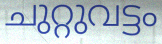
ചുറ്റുവട്ടം